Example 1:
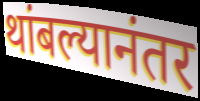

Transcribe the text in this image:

थांबल्यानंतर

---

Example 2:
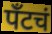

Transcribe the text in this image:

पँटचं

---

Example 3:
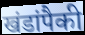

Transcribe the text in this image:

खंडांपैकी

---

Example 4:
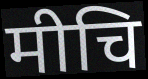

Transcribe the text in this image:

मीचि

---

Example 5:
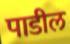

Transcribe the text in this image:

पाडील